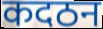
कदठन